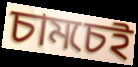
চামচেই